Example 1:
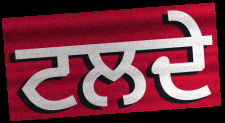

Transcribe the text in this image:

ਟਲਦੇ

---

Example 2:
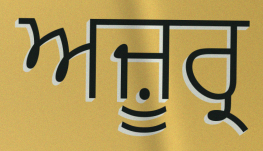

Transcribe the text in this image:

ਅਜ਼ੂਰ੍ਰ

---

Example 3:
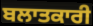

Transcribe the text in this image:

ਬਲਾਤਕਾਰੀ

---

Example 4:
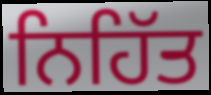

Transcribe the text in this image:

ਨਿਹਿੱਤ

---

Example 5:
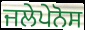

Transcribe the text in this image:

ਜਲੇਪੇਨੋਸ